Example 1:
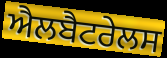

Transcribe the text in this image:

ਐਲਬੈਟਰੇਲਸ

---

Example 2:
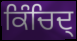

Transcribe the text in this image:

ਕਿੰਚਿਦ੍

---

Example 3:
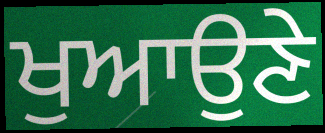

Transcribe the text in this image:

ਖੁਆਉਣੇ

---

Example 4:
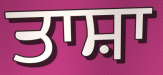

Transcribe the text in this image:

ਤਾਸ਼ਾ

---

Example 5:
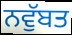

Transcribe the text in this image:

ਨਵੁੱਬਤ